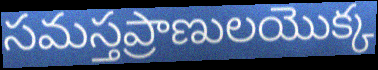
సమస్తప్రాణులయొక్క